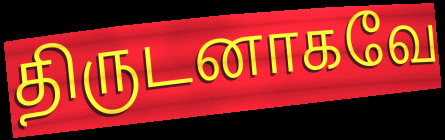
திருடனாகவே